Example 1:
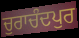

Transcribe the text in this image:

ਚੁਰਾਚੰਦਪੁਰ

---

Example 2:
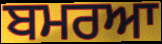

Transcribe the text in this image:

ਬਮਰਆ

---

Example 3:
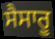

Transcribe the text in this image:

ਸੈਸਾਰੂ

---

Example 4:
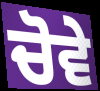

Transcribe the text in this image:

ਚੋਵੇ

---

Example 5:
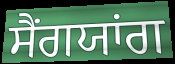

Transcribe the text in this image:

ਸੈਂਗਯਾਂਗ